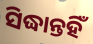
ସିଦ୍ଧାନ୍ତହିଁ